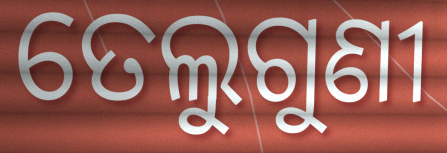
ତେଲୁଗୁଣୀ